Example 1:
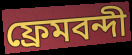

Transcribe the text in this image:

ফ্রেমবন্দী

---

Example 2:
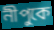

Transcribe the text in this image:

নীপুকে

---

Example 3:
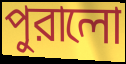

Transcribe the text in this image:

পুরালো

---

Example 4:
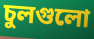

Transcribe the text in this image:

চুলগুলো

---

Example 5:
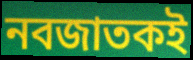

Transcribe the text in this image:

নবজাতকই